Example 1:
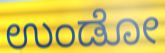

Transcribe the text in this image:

ಉಂಡೋ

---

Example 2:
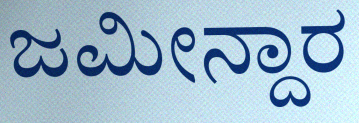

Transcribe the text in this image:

ಜಮೀನ್ದಾರ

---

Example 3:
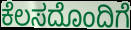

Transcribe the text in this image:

ಕೆಲಸದೊಂದಿಗೆ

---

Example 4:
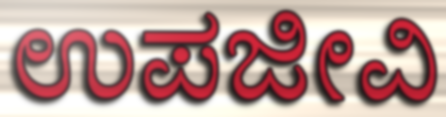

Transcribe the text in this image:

ಉಪಜೀವಿ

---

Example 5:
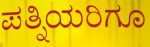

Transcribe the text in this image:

ಪತ್ನಿಯರಿಗೂ